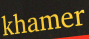
khamer